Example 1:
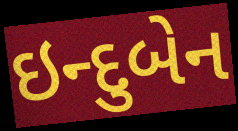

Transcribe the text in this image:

ઇન્દુબેન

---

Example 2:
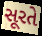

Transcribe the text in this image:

સૂરતે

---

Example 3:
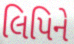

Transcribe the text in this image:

લિપિને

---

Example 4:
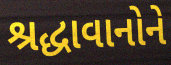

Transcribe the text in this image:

શ્રદ્ધાવાનોને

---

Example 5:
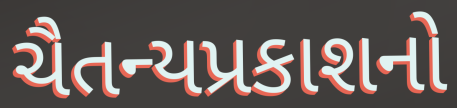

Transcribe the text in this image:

ચૈતન્યપ્રકાશનો